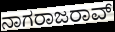
ನಾಗರಾಜರಾವ್